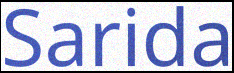
Sarida